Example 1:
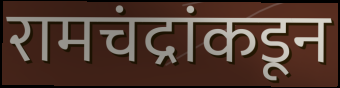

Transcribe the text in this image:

रामचंद्रांकडून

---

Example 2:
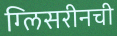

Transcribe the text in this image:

ग्लिसरीनची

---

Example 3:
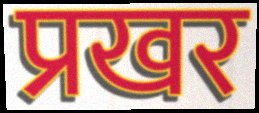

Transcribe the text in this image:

प्रखर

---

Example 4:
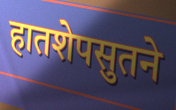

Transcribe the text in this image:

हातशेपसुतने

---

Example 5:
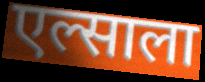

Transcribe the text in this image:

एल्साला